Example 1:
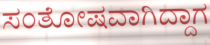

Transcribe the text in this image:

ಸಂತೋಷವಾಗಿದ್ದಾಗ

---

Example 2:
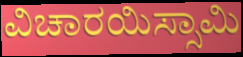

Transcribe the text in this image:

ವಿಚಾರಯಿಸ್ಸಾಮಿ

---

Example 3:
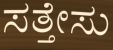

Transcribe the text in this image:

ಸತ್ತೇಸು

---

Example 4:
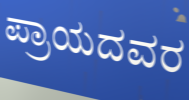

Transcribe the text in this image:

ಪ್ರಾಯದವರ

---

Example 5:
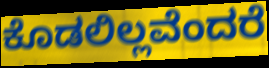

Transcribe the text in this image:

ಕೊಡಲಿಲ್ಲವೆಂದರೆ